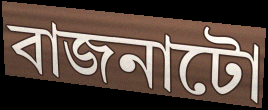
বাজনাটো